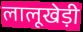
लालूखेड़ी